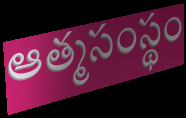
ఆత్మసంస్థం